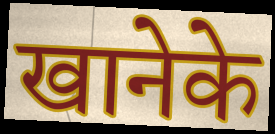
खानेके